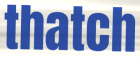
thatch